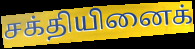
சக்தியினைக்